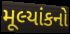
મૂલ્યાંકનો